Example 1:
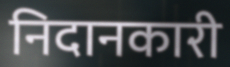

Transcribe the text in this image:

निदानकारी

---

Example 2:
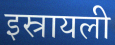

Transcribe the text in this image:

इस्रायली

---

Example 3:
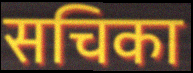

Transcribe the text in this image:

सचिका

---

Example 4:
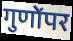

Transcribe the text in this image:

गुणोंपर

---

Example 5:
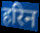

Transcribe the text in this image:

हरिन